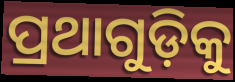
ପ୍ରଥାଗୁଡ଼ିକୁ